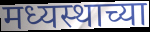
मध्यस्थाच्या